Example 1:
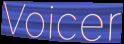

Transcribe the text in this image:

Voicer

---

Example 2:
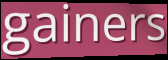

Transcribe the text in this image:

gainers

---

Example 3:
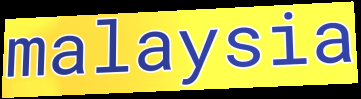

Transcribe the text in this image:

malaysia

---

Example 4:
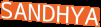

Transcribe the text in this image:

SANDHYA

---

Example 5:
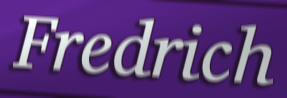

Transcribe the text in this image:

Fredrich